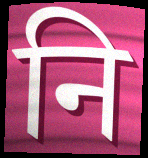
नि